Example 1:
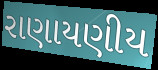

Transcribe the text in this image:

રાણાયણીય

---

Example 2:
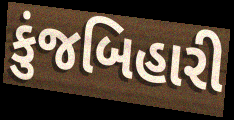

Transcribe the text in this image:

કુંજબિહારી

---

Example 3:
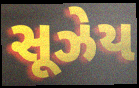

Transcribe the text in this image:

સૂઝેય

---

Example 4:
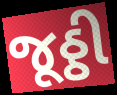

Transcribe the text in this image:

જૂઠ્ઠી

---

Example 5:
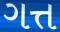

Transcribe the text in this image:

ગત્ત